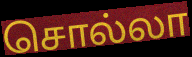
சொல்லா